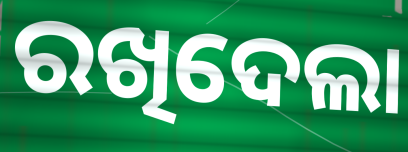
ରଖିଦେଲା